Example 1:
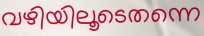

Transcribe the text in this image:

വഴിയിലൂടെതന്നെ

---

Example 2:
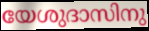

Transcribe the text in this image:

യേശുദാസിനു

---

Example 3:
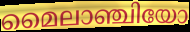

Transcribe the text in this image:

മൈലാഞ്ചിയോ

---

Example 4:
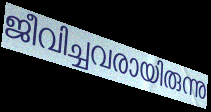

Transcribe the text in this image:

ജീവിച്ചവരായിരുന്നു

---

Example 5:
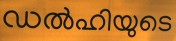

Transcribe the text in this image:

ഡൽഹിയുടെ